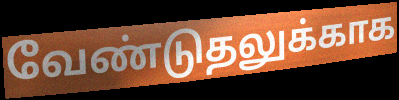
வேண்டுதலுக்காக